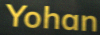
Yohan